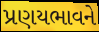
પ્રણયભાવને